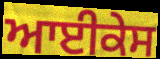
ਆਈਕੇਸ